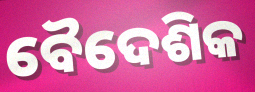
ବୈଦେଶିକ